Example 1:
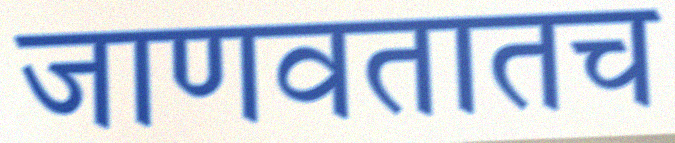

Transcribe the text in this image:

जाणवतातच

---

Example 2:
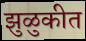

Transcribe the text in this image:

झुळुकीत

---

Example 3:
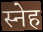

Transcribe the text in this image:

स्नेह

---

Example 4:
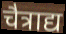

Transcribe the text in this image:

चैत्राद्य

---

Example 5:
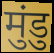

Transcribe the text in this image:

मुंडु